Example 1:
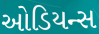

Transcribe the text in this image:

ઓડિયન્સ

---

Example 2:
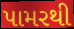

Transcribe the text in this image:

પામરથી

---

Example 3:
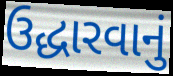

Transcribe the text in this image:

ઉદ્ધારવાનું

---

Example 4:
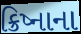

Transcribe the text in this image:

ક્રિષ્નાના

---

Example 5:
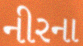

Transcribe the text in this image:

નીરના